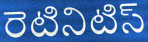
రెటినిటిస్